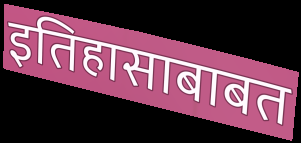
इतिहासाबाबत